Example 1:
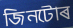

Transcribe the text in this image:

জিনটোৰ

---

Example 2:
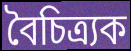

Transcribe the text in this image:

বৈচিত্ৰ্যক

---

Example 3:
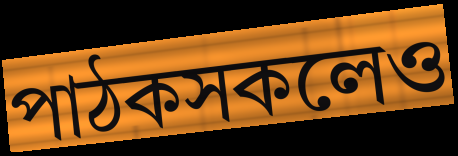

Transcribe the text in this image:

পাঠকসকলেও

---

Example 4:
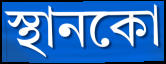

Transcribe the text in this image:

স্থানকো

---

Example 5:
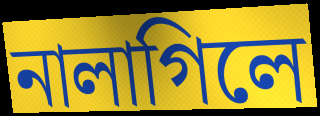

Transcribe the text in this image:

নালাগিলে